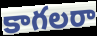
కాగలరా